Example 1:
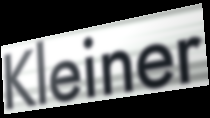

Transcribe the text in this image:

Kleiner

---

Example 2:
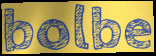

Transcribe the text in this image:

bolbe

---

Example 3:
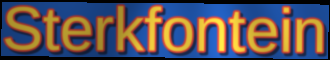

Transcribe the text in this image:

Sterkfontein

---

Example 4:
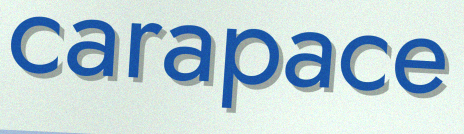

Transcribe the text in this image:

carapace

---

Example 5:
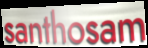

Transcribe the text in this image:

santhosam